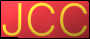
JCC